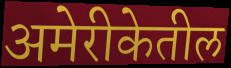
अमेरीकेतील